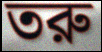
তরু